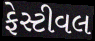
ફેસ્ટીવલ